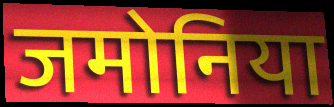
जमोनिया